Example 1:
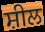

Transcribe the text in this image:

ਸ਼ੀਲ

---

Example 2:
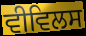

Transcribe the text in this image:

ਵੀਵਿਲਸ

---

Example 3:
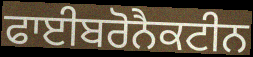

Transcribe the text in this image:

ਫਾਈਬਰੋਨੈਕਟੀਨ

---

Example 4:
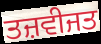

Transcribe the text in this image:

ਤਜ਼ਵੀਜਤ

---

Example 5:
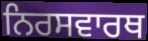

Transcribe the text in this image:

ਨਿਰਸਵਾਰਥ